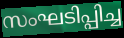
സംഘടിപ്പിച്ച